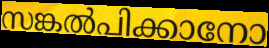
സങ്കൽപിക്കാനോ